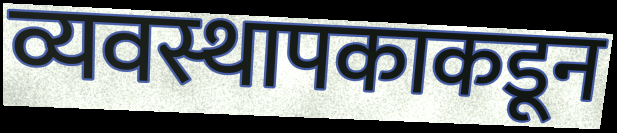
व्यवस्थापकाकडून